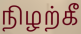
நிழற்கீ